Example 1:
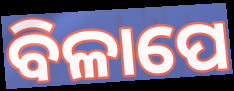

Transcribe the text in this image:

ବିଳାପେ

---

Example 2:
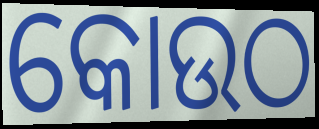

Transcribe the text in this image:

କୋଉଠ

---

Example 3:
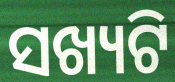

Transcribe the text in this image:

ସଖ୍ୟଟି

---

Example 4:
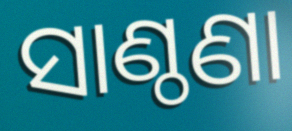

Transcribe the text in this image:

ସାଣ୍ଠଣା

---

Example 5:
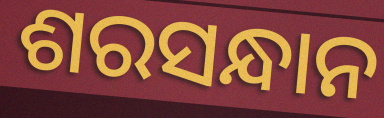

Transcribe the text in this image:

ଶରସନ୍ଧାନ